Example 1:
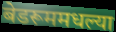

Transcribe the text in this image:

बेडरूममधल्या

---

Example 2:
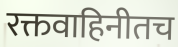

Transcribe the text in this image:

रक्तवाहिनीतच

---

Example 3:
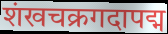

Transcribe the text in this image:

शंखचक्रगदापद्म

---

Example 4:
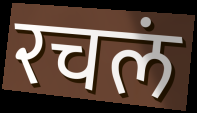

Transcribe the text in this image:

रचलं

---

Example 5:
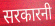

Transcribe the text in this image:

सरकारनी